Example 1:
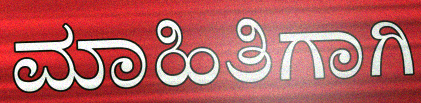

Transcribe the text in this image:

ಮಾಹಿತಿಗಾಗಿ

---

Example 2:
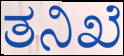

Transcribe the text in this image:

ತನಿಖೆ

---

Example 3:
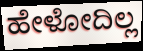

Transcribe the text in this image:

ಹೇಳೋದಿಲ್ಲ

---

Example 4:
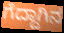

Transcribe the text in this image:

ಗೆದ್ದಾಗಿನ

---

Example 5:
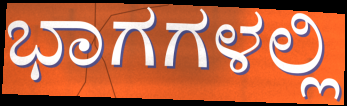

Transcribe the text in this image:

ಭಾಗಗಳಲ್ಲಿ